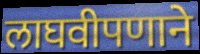
लाघवीपणाने